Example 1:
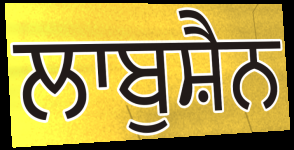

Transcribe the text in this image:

ਲਾਬੁਸ਼ੈਨ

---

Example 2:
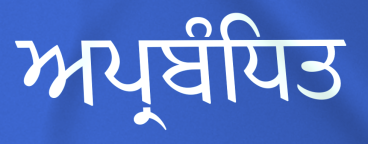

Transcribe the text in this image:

ਅਪ੍ਰਬੰਧਿਤ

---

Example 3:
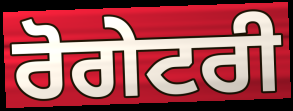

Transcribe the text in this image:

ਰੋਗੇਟਰੀ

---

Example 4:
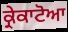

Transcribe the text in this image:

ਕ੍ਰੇਕਾਟੋਆ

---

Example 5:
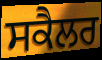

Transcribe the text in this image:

ਸਕੈਲਰ